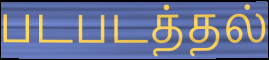
படபடத்தல்